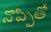
నొప్పితో